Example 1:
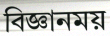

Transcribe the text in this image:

বিজ্ঞানময়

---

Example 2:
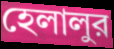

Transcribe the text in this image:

হেলালুর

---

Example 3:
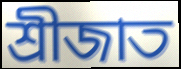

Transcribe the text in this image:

শ্রীজাত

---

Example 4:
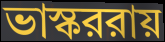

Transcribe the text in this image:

ভাস্কররায়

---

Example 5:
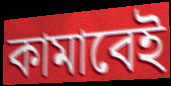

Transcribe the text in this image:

কামাবেই